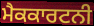
ਮੈਕਕਾਰਟਨੀ